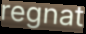
regnat